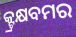
କ୍ଟ୍ରକ୍ଷବମର